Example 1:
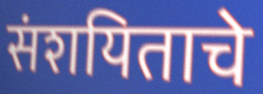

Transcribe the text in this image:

संशयिताचे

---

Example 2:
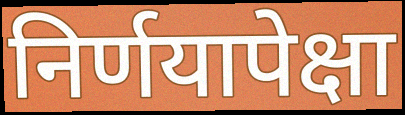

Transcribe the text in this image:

निर्णयापेक्षा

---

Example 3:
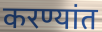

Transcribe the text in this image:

करण्यांत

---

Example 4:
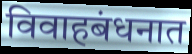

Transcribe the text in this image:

विवाहबंधनात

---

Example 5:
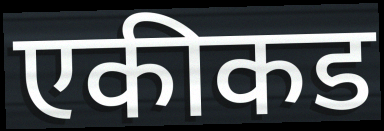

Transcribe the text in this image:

एकीकड